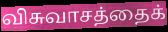
விசுவாசத்தைக்